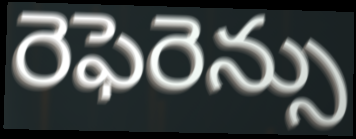
రెఫెరెన్సు